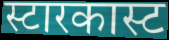
स्टारकास्ट